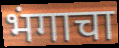
भंगाचा